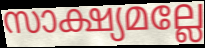
സാക്ഷ്യമല്ലേ